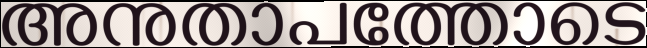
അനുതാപത്തോടെ